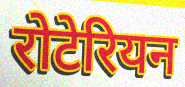
रोटेरियन